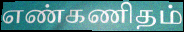
எண்கணிதம்